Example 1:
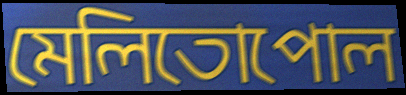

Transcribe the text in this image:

মেলিতোপোল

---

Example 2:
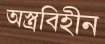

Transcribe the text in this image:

অস্ত্রবিহীন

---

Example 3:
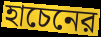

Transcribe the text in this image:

হাচেনের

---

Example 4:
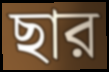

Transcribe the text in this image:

ছার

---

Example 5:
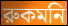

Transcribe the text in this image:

রুকমনি